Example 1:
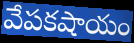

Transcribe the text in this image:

వేపకషాయం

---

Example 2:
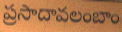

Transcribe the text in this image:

ప్రసాదావలంబాం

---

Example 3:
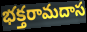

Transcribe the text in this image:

భక్తరామదాస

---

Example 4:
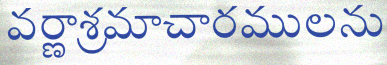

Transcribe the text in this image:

వర్ణాశ్రమాచారములను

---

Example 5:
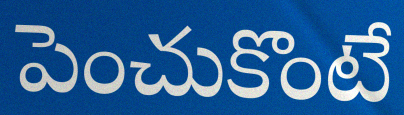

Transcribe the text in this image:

పెంచుకొంటే